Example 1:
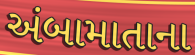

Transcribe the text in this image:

અંબામાતાના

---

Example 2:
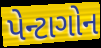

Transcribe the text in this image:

પેન્ટાગોન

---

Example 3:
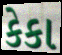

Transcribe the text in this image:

કેકા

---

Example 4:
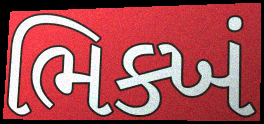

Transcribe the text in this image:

ભિક્ખં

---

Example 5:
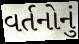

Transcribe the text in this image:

વર્તનોનું